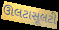
ઊલટાસૂલટી